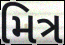
મિત્ર